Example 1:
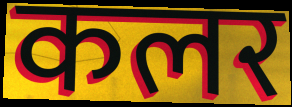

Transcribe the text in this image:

कलर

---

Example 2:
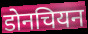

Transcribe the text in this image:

डोनचियन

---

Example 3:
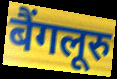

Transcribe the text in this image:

बैंगलूरु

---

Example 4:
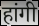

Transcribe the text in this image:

हांगी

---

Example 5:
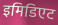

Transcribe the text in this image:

इमिडिएट